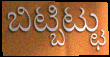
ಬಿಟ್ಬಿಟ್ಟು